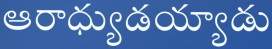
ఆరాధ్యుడయ్యాడు